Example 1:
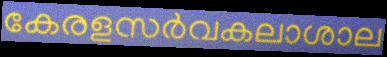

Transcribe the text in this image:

കേരളസർവകലാശാല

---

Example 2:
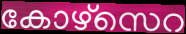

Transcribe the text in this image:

കോഴ്സെറ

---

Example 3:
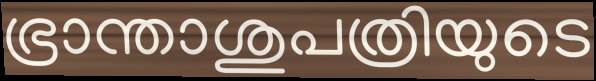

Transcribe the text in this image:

ഭ്രാന്താശുപത്രിയുടെ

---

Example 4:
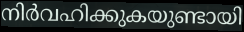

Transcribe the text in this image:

നിർവഹിക്കുകയുണ്ടായി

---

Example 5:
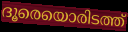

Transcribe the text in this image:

ദൂരെയൊരിടത്ത്